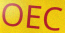
OEC